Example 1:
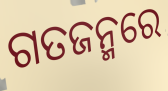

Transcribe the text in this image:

ଗତଜନ୍ମରେ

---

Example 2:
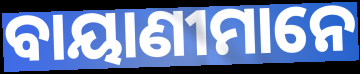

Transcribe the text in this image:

ବାୟାଣୀମାନେ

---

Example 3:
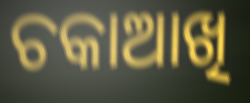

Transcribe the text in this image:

ଚକାଆଖି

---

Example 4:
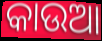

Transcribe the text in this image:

କାଉଆ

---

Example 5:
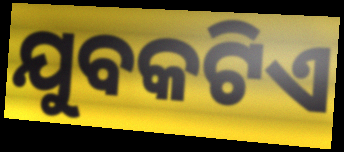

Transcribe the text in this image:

ଯୁବକଟିଏ